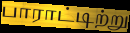
பாராட்டிற்று